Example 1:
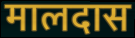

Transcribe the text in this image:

मालदास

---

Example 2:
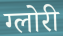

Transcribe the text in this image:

ग्लोरी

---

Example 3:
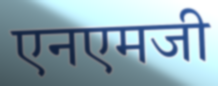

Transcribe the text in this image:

एनएमजी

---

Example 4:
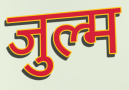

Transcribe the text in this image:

जुल्म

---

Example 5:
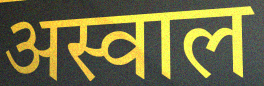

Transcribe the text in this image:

अस्वाल